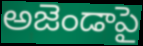
అజెండాపై